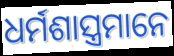
ଧର୍ମଶାସ୍ତ୍ରମାନେ